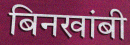
बिनखांबी